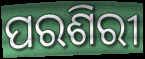
ପରଶିରୀ